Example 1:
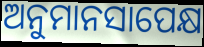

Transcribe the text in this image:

ଅନୁମାନସାପେକ୍ଷ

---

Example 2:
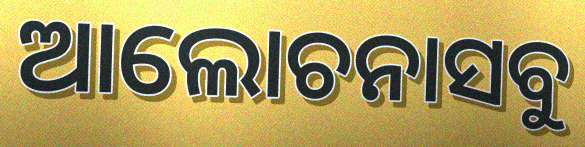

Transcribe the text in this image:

ଆଲୋଚନାସବୁ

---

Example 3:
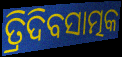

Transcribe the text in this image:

ତ୍ରିଦିବସାତ୍ମକ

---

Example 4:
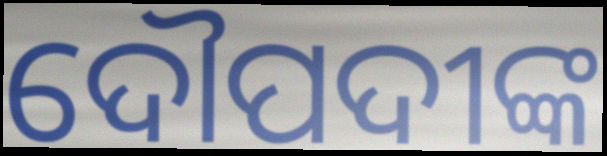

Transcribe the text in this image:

ଦୌପଦୀଙ୍କ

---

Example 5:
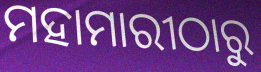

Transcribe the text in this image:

ମହାମାରୀଠାରୁ